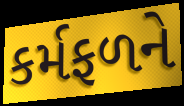
કર્મફળને